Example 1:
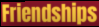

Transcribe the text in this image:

Friendships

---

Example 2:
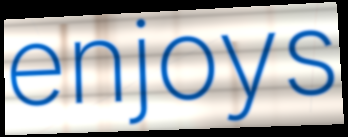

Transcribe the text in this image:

enjoys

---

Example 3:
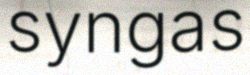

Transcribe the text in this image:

syngas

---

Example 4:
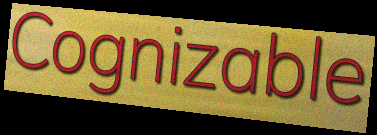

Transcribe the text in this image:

Cognizable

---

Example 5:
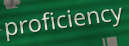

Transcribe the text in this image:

proficiency